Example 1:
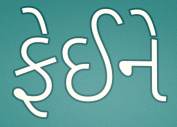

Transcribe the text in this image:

ફેઈને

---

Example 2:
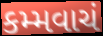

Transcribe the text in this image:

કમ્મવાચં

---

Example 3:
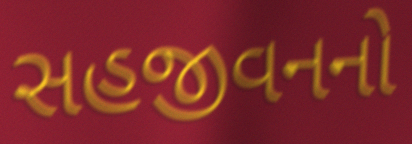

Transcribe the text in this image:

સહજીવનનો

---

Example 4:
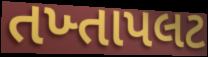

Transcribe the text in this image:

તખ્તાપલટ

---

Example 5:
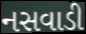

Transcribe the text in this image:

નસવાડી